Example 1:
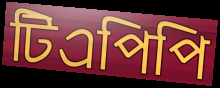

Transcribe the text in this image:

টিএপিপি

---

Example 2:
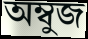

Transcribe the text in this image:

অম্বুজ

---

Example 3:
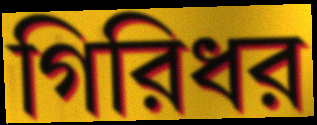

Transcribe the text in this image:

গিরিধর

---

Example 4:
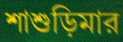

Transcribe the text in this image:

শাশুড়িমার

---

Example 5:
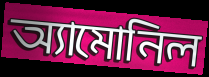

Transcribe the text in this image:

অ্যামোনিল